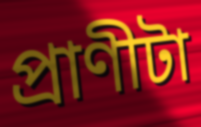
প্রাণীটা